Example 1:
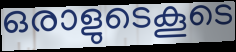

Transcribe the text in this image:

ഒരാളുടെകൂടെ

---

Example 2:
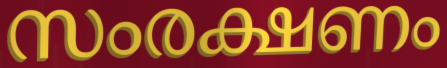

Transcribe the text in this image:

സംരക്ഷണം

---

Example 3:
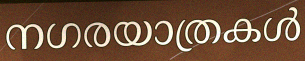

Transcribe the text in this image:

നഗരയാത്രകൾ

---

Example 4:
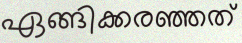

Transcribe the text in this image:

ഏങ്ങിക്കരഞ്ഞത്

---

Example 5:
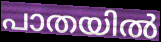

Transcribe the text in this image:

പാതയിൽ